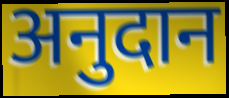
अनुदान